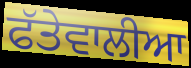
ਫੱਤੇਵਾਲੀਆ